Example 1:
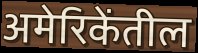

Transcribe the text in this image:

अमेरिकेंतील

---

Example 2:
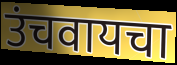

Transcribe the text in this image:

उंचवायचा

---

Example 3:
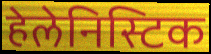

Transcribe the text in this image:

हेलेनिस्टिक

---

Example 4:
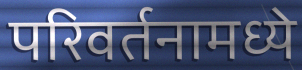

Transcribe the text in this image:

परिवर्तनामध्ये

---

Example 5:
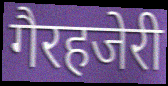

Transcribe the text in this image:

गैरहजेरी